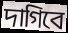
দাগিবে